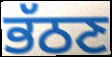
ਭੱਠਣ